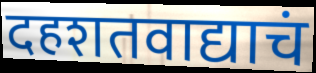
दहशतवाद्याचं